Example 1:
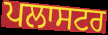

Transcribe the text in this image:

ਪਲਾਸਟਰ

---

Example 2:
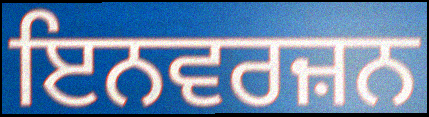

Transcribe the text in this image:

ਇਨਵਰਜ਼ਨ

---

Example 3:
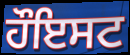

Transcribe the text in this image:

ਹੌਇਸਟ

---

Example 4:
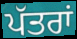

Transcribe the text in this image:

ਪੱਤਰਾਂ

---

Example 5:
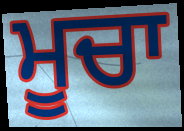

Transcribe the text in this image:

ਮੂਚਾ